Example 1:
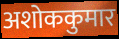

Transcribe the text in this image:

अशोककुमार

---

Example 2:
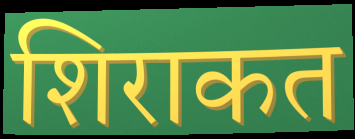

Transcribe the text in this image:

शिराकत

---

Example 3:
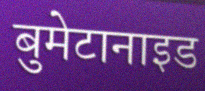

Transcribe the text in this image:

बुमेटानाइड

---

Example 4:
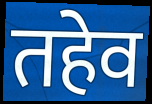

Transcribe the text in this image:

तहेव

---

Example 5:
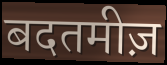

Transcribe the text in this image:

बदतमीज़